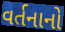
વર્તનાનો